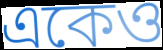
একেও